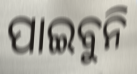
ପାଇବୁନି